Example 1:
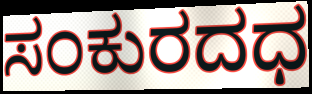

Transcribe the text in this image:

ಸಂಕುರದಧ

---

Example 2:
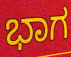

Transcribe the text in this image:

ಭಾಗ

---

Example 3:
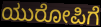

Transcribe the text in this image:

ಯುರೋಪಿಗೆ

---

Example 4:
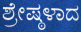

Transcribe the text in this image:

ಶ್ರೇಷ್ಠಳಾದ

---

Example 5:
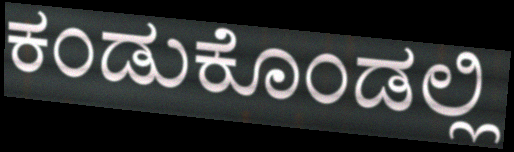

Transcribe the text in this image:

ಕಂಡುಕೊಂಡಲ್ಲಿ